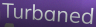
Turbaned